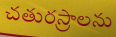
చతురస్రాలను